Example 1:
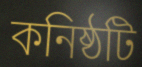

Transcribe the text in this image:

কনিষ্ঠটি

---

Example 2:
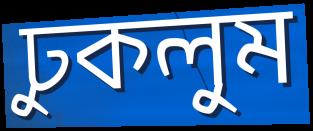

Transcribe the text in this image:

ঢুকলুম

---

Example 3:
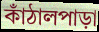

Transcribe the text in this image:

কাঁঠালপাড়া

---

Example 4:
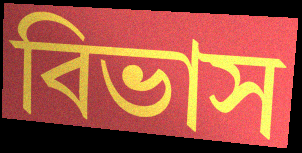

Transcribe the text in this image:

বিভাস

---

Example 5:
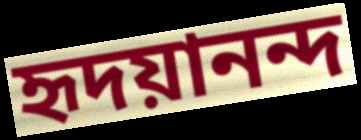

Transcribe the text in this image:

হৃদয়ানন্দ